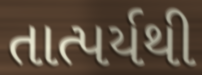
તાત્પર્યથી